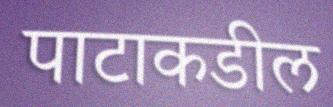
पाटाकडील